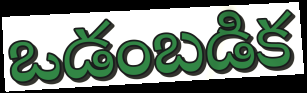
ఒడంబడిక